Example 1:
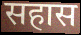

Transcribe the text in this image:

सहास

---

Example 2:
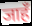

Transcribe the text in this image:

जाहँ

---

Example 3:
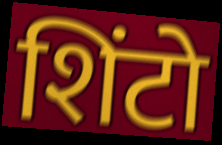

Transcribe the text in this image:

शिंटो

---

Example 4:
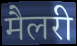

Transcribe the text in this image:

मैलरी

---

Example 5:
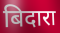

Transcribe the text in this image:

बिदारा